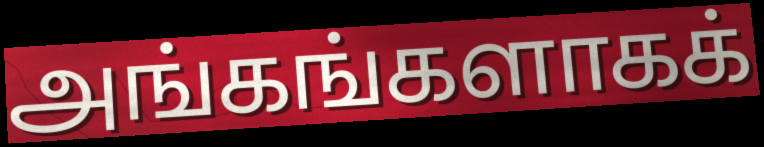
அங்கங்களாகக்